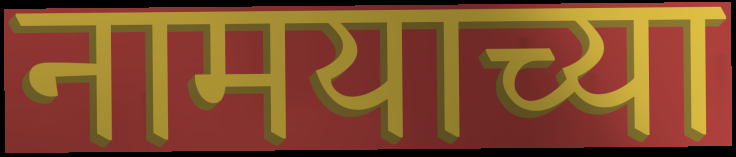
नामयाच्या